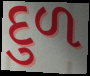
દુળ